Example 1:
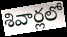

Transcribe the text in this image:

శివార్లలో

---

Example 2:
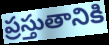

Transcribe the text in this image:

ప్రస్తుతానికి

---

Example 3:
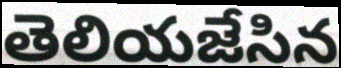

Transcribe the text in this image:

తెలియజేసిన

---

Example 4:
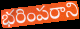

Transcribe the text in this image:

భరింపరాని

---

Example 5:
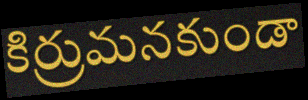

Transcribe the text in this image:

కిర్రుమనకుండా